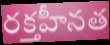
రక్తహీనత